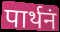
पार्थनं